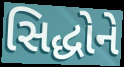
સિદ્ધોને